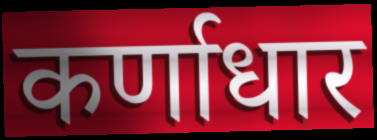
कर्णाधार